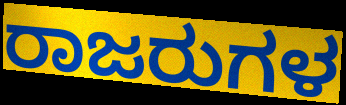
ರಾಜರುಗಳ